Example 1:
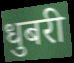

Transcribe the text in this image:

धुबरी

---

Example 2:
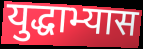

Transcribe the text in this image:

युद्धाभ्यास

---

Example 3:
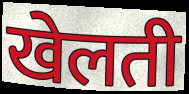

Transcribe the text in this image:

खेलती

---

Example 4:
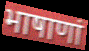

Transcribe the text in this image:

भाषाणां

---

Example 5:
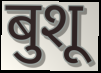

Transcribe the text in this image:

बुशू